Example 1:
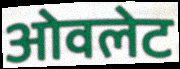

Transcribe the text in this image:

ओवलेट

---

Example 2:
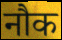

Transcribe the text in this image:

नौक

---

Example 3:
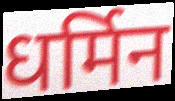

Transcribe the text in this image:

धर्मिन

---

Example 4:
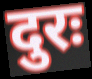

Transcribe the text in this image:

दुरः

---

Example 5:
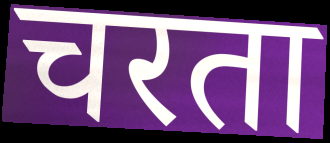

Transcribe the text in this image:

चरता